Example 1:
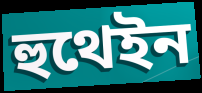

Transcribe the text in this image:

হুথেইন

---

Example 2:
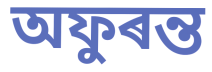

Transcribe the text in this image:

অফুৰন্ত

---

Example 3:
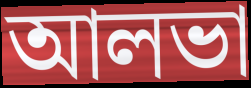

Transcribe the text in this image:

আলভা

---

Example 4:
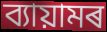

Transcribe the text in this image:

ব্যায়ামৰ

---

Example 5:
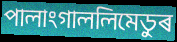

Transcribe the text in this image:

পালাংগাললিমেডুৰ